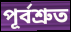
পূর্বশ্রুত